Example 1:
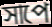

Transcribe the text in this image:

সাপে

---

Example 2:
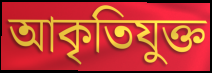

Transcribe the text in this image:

আকৃতিযুক্ত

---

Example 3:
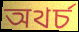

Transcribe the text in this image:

অথৰ্চ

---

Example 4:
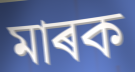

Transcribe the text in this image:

মাৰক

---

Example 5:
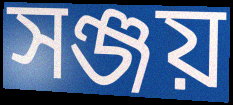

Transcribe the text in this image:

সঞ্জয়